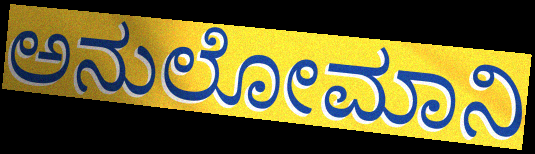
ಅನುಲೋಮಾನಿ